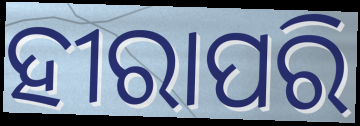
ହୀରାପରି